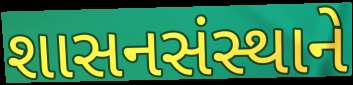
શાસનસંસ્થાને